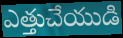
ఎత్తుచేయుడి